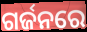
ଗର୍ଜନରେ